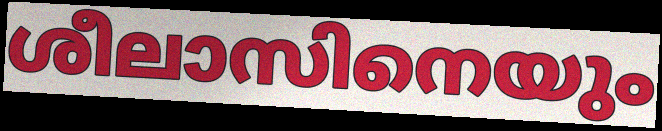
ശീലാസിനെയും